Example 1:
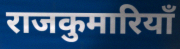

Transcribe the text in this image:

राजकुमारियाँ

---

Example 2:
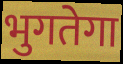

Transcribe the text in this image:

भुगतेगा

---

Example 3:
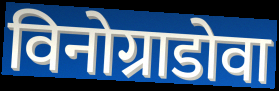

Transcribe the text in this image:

विनोग्राडोवा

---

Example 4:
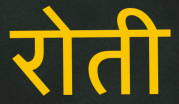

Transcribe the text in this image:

रोती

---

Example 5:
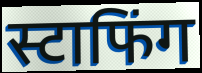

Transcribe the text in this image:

स्टाफिंग